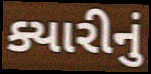
ક્યારીનું